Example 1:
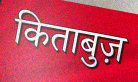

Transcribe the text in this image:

किताबुज़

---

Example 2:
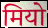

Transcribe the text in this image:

मियो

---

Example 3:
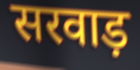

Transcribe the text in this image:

सरवाड़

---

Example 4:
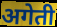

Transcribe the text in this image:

अगेती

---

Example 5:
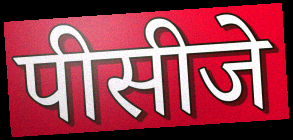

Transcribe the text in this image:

पीसीजे